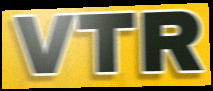
VTR